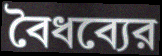
বৈধব্যের